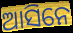
ଆସିନେ